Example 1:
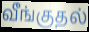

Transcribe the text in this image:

வீங்குதல்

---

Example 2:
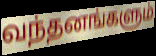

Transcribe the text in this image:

வந்தனங்களும்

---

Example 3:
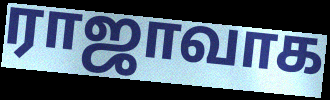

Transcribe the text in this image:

ராஜாவாக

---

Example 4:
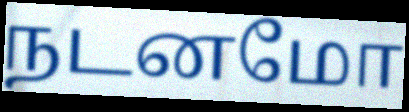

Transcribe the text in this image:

நடனமோ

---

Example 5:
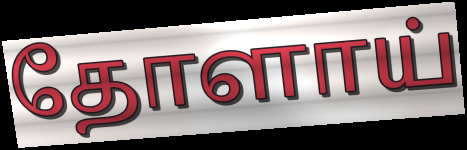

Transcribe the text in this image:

தோளாய்